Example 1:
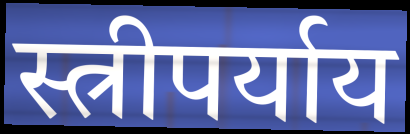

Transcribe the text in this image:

स्त्रीपर्याय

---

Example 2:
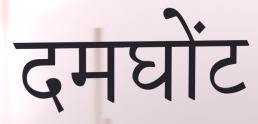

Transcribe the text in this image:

दमघोंट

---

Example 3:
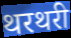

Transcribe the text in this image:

थरथरी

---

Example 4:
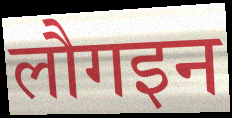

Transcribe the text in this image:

लौगइन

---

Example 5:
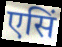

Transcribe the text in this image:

एसिं